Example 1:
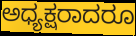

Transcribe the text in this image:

ಅಧ್ಯಕ್ಷರಾದರೂ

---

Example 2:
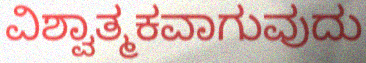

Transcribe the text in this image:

ವಿಶ್ವಾತ್ಮಕವಾಗುವುದು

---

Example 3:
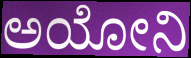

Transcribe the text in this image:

ಅಯೋನಿ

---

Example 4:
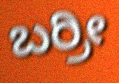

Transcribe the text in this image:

ಬರ್ರೀ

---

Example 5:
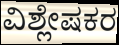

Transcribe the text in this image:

ವಿಶ್ಲೇಷಕರ